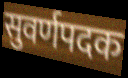
सुवर्णपदक